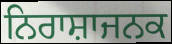
ਨਿਰਾਸ਼ਾਜਨਕ